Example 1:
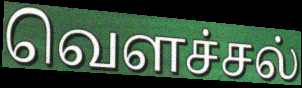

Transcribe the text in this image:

வெளச்சல்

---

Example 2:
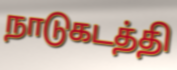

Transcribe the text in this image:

நாடுகடத்தி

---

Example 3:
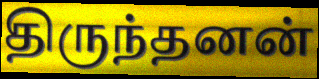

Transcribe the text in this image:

திருந்தனன்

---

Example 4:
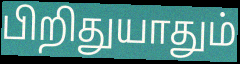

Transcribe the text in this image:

பிறிதுயாதும்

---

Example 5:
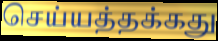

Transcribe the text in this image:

செய்யத்தக்கது